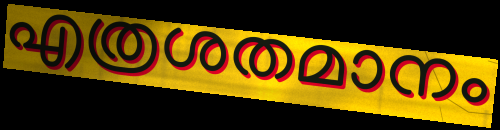
എത്രശതമാനം